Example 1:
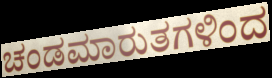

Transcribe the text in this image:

ಚಂಡಮಾರುತಗಳಿಂದ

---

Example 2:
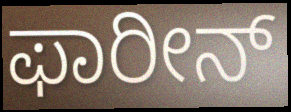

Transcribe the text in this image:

ಫಾರೀನ್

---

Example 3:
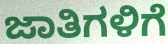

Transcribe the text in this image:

ಜಾತಿಗಳಿಗೆ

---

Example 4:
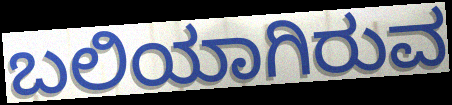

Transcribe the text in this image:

ಬಲಿಯಾಗಿರುವ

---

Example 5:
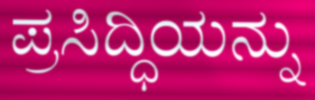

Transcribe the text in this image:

ಪ್ರಸಿದ್ಧಿಯನ್ನು